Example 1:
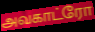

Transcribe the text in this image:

அவகாட்ரோ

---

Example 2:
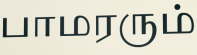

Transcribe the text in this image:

பாமரரும்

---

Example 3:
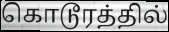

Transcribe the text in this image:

கொடூரத்தில்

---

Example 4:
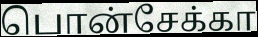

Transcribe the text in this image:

பொன்சேக்கா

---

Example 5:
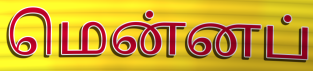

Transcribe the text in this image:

மென்னப்